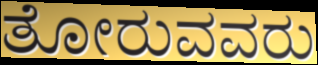
ತೋರುವವರು